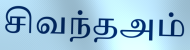
சிவந்தஅம்